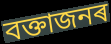
বক্তাজনৰ